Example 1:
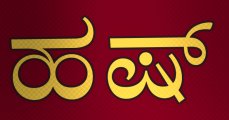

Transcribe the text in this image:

ಹಷ್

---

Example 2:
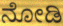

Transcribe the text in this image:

ನೋಡಿ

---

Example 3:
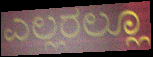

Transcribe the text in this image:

ಎಲ್ಲರಲ್ಲೂ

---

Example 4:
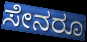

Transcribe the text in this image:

ಸೇನರೂ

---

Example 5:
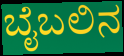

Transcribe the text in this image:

ಬೈಬಲಿನ